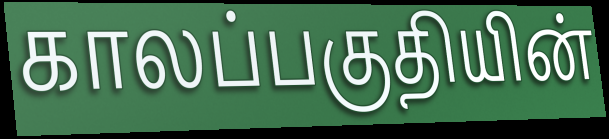
காலப்பகுதியின்